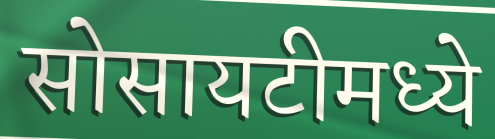
सोसायटीमध्ये